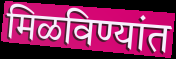
मिळविण्यांत